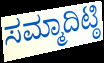
ಸಮ್ಮಾದಿಟ್ಠಿ